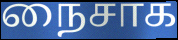
நைசாக